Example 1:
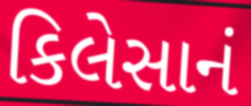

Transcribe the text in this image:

કિલેસાનં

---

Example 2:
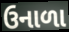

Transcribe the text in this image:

ઉનાળા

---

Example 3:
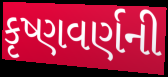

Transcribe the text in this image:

કૃષ્ણવર્ણની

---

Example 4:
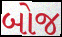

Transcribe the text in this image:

બોજ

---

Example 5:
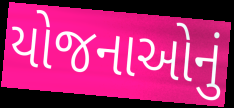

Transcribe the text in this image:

યોજનાઓનું